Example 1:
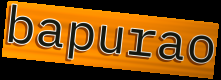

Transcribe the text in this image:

bapurao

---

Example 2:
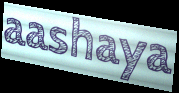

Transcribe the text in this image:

aashaya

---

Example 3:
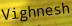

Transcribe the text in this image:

Vighnesh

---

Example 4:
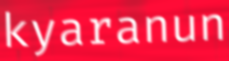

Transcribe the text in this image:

kyaranun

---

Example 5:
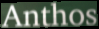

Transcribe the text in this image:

Anthos